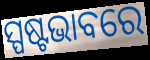
ସ୍ପଷ୍ଟଭାବରେ